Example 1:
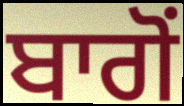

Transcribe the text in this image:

ਬਾਗੋਂ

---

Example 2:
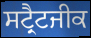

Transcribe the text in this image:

ਸਟ੍ਰੈਟਜੀਕ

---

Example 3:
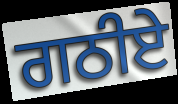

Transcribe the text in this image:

ਗਠੀਏ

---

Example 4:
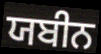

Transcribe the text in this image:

ਯਬੀਨ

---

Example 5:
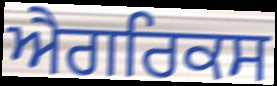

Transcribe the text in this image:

ਐਗਰਿਕਸ